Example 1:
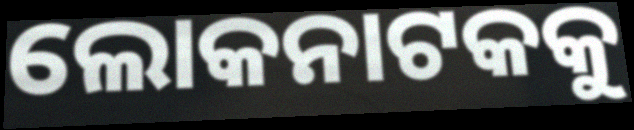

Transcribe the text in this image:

ଲୋକନାଟକକୁ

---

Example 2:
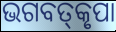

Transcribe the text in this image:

ଭଗବତ୍‌କୃପା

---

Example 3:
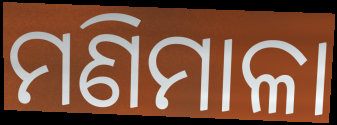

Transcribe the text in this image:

ମଣିମାଳା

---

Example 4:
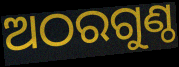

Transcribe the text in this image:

ଅଠରଗୁଣ୍ଠ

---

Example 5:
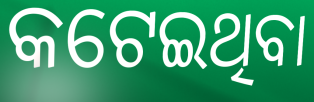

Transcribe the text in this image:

କଟେଇଥିବା